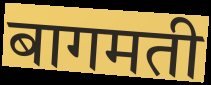
बागमती